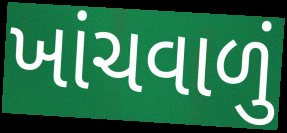
ખાંચવાળું